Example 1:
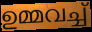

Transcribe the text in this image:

ഉമ്മവച്ച്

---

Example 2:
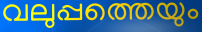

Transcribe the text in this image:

വലുപ്പത്തെയും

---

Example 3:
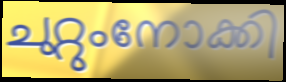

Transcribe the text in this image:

ചുറ്റുംനോക്കി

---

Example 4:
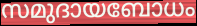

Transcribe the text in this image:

സമുദായബോധം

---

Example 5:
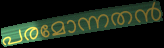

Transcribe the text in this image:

പരമോന്നതൻ